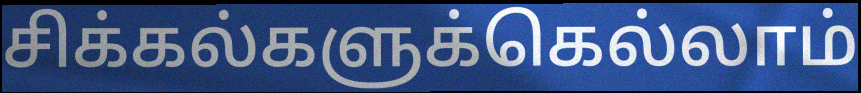
சிக்கல்களுக்கெல்லாம்